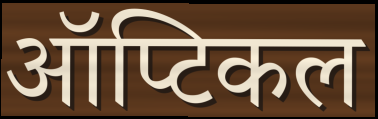
ऑप्टिकल